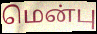
மென்பு